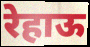
रेहाऊ